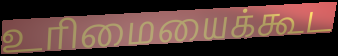
உரிமையைக்கூட